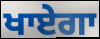
ਖਾਏਗਾ